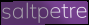
saltpetre